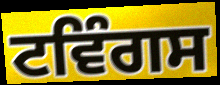
ਟਵਿੰਗਸ